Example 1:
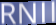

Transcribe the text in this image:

RNII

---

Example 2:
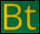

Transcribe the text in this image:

Bt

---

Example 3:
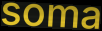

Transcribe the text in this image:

soma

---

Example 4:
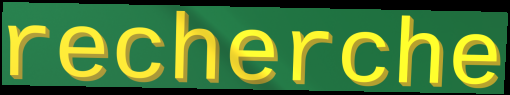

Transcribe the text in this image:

recherche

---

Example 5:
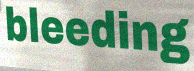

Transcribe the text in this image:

bleeding